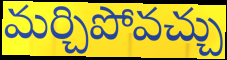
మర్చిపోవచ్చు